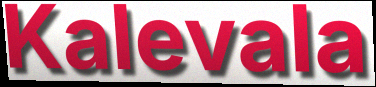
Kalevala